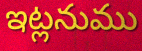
ఇట్లనుము